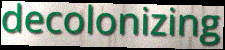
decolonizing